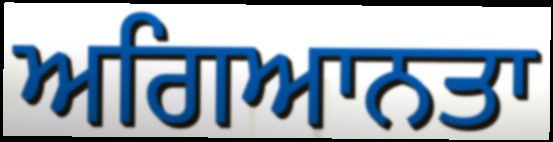
ਅਗਿਆਨਤਾ